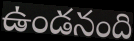
ఉండనంది